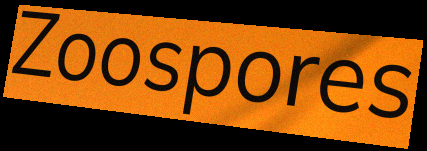
Zoospores